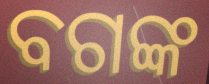
ବଗଙ୍କ